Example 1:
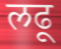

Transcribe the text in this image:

लढू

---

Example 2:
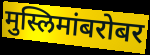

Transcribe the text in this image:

मुस्लिमांबरोबर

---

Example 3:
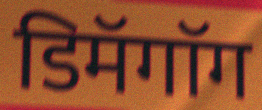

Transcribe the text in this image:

डिमॅगॉग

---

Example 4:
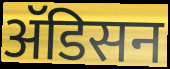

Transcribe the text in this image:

ॲडिसन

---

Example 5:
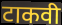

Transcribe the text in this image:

टाकवी